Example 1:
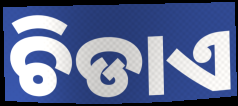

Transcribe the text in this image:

ଚିଡାଏ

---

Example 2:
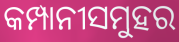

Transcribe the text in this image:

କମ୍ପାନୀସମୁହର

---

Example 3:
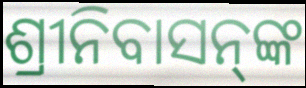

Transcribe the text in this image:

ଶ୍ରୀନିବାସନ୍‌ଙ୍କ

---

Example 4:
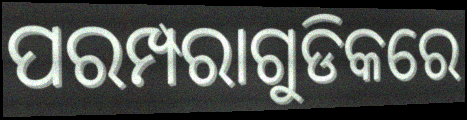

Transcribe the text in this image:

ପରମ୍ପରାଗୁଡିକରେ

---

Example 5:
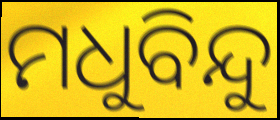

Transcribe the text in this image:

ମଧୁବିନ୍ଦୁ